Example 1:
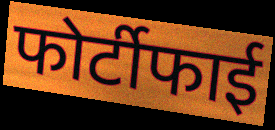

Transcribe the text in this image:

फोर्टीफाई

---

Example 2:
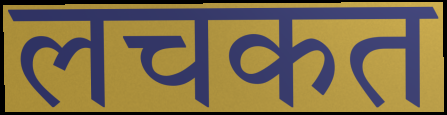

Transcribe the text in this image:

लचकत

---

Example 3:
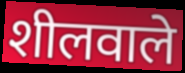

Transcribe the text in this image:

शीलवाले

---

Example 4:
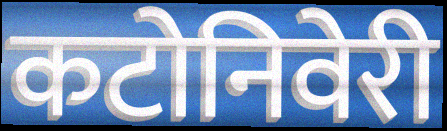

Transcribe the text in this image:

कटोनिवेरी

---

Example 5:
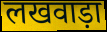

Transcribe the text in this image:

लखवाड़ा